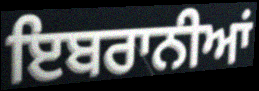
ਇਬਰਾਨੀਆਂ